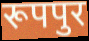
रूपपुर